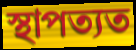
স্থাপত্যত